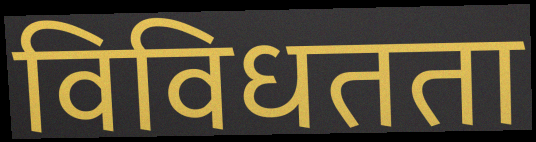
विविधतता